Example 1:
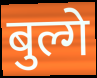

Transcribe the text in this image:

बुल्गे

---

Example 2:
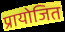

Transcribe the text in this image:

प्रायोजित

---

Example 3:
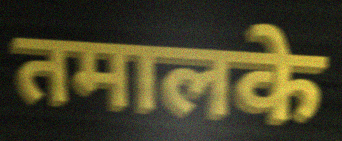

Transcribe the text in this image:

तमालके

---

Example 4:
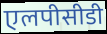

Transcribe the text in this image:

एलपीसीडी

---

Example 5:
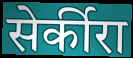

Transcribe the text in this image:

सेर्कीरा